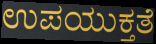
ಉಪಯುಕ್ತತೆ